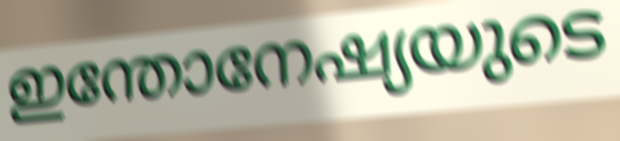
ഇന്തോനേഷ്യയുടെ